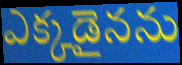
ఎక్కడైనను